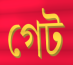
গেট